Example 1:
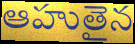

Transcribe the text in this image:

ఆహుతైన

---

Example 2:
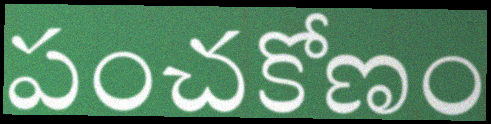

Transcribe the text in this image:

పంచకోణం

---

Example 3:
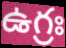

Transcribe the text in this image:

ఉగ్రః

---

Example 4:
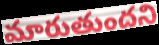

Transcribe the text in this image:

మారుతుందని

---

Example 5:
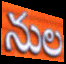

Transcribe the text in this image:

నుల